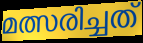
മത്സരിച്ചത്